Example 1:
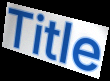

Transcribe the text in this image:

Title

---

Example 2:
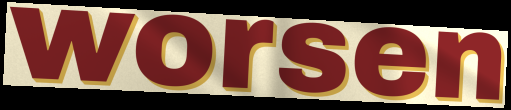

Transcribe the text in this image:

worsen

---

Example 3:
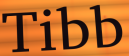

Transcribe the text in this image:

Tibb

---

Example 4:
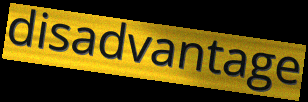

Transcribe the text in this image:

disadvantage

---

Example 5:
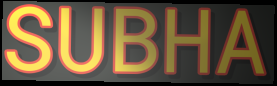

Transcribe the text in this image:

SUBHA